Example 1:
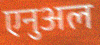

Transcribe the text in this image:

एनुअल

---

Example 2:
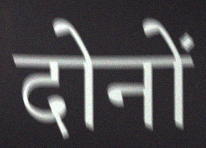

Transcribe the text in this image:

दोनों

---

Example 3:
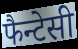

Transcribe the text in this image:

फैन्टेसी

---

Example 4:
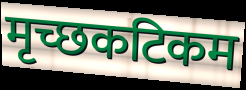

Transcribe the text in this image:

मृच्छकटिकम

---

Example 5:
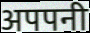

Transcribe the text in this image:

अपपनी